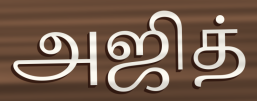
அஜித்